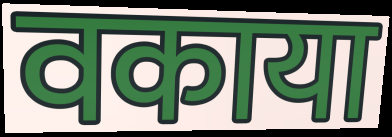
वकाया